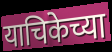
याचिकेच्या